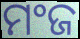
ମଂଜ